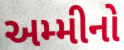
અમ્મીનો